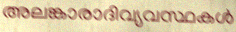
അലങ്കാരാദിവ്യവസ്ഥകൾ